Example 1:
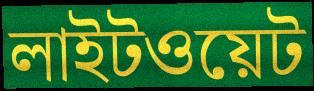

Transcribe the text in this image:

লাইটওয়েট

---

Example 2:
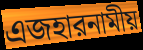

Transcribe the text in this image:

এজহারনামীয়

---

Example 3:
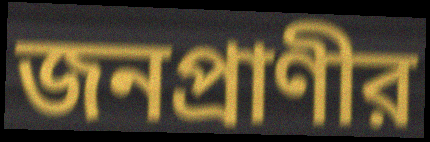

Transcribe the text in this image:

জনপ্রাণীর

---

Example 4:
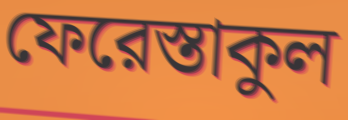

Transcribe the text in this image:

ফেরেস্তাকুল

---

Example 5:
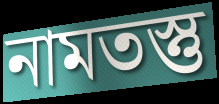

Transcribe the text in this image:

নামতস্তু